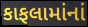
કાફલામાંનાં